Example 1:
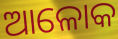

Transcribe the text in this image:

ଆଳୋକ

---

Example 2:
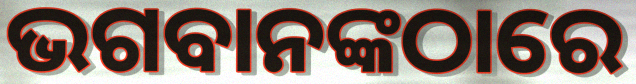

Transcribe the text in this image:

ଭଗବାନଙ୍କଠାରେ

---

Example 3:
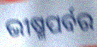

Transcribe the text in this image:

ଭୀଷ୍ମପର୍ବର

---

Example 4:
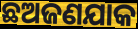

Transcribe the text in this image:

ଛଅଜଣଯାକ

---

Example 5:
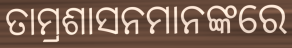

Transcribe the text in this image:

ତାମ୍ରଶାସନମାନଙ୍କରେ